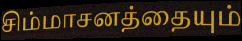
சிம்மாசனத்தையும்